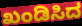
ಖಂಡಿಸಿದ